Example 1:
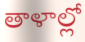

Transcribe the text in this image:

తాళాల్లో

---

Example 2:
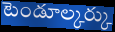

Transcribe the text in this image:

టెండూల్కర్కు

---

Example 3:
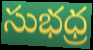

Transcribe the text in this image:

సుభధ్ర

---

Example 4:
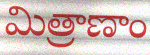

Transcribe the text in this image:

మిత్రాణాం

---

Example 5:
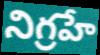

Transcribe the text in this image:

నిగ్రహే